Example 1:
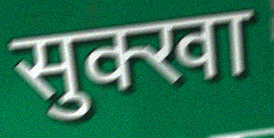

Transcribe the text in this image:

सुक्खा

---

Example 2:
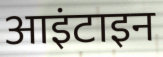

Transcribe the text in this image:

आइंटाइन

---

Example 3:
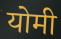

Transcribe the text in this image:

योमी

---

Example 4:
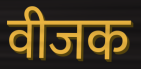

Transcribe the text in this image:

वीजक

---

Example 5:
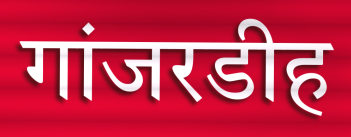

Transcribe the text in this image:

गांजरडीह